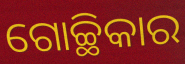
ଗୋଚ୍ଛିକାର